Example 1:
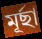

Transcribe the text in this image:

মূর্ছা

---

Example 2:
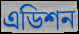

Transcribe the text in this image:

এডিশন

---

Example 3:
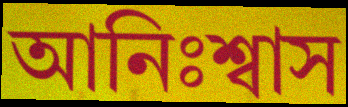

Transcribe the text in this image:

আনিঃশ্বাস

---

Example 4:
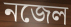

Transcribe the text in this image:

নজেল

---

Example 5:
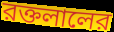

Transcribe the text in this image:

রক্তলালের